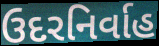
ઉદરનિર્વાહ